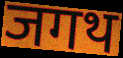
जगथ